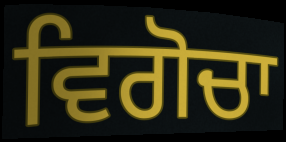
ਵਿਗੋਚਾ